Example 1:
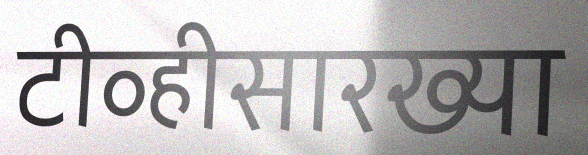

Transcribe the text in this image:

टीव्हीसारख्या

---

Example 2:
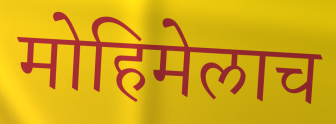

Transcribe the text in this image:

मोहिमेलाच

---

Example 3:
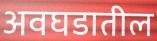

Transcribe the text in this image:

अवघडातील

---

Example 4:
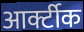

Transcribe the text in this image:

आर्क्टीक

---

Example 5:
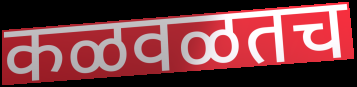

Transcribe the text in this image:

कळवळतच